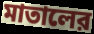
মাতালের